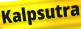
Kalpsutra